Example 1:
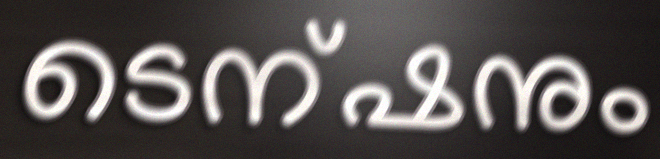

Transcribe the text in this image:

ടെന്ഷനും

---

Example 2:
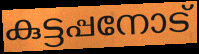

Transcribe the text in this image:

കുട്ടപ്പനോട്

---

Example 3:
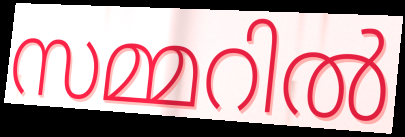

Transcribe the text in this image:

സമ്മറിൽ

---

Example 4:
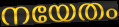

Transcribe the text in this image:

നയേതം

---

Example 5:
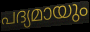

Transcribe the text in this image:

പദ്യമായും